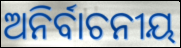
ଅନିର୍ବାଚନୀୟ